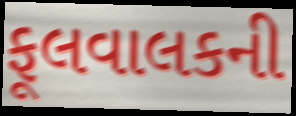
ફૂલવાલકની